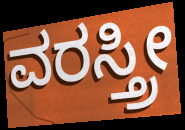
ವರಸ್ತ್ರೀ